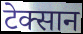
टेक्सान